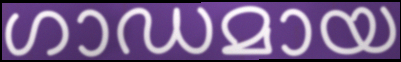
ഗാഡമായ